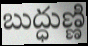
బుద్ధుణ్ణి